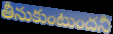
తీసుకుంటుందనీ